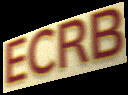
ECRB